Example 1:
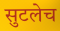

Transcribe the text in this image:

सुटलेच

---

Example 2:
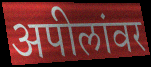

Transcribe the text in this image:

अपीलांवर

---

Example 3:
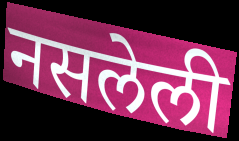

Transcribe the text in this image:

नसलेली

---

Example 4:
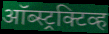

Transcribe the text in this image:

ऑब्स्ट्रक्टिव्ह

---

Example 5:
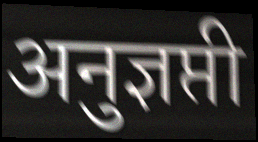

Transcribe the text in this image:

अनुज्ञप्ती